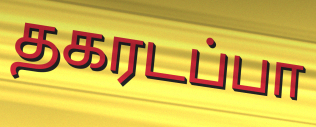
தகரடப்பா